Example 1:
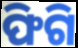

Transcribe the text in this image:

ଫିଗି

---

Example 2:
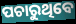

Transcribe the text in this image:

ପଚାରୁଥିବେ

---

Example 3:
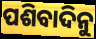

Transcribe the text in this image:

ପଶିବାଦିନୁ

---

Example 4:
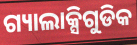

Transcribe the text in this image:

ଗ୍ୟାଲାକ୍ସିଗୁଡିକ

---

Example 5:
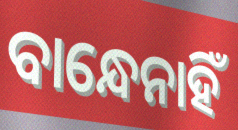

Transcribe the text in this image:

ବାନ୍ଧେନାହିଁ